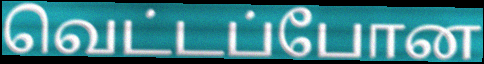
வெட்டப்போன